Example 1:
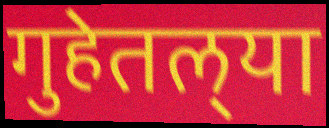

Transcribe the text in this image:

गुहेतल्या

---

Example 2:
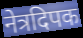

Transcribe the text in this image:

नेत्रदिपक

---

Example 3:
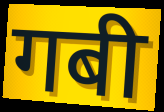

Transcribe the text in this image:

गबी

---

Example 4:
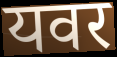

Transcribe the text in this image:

यवर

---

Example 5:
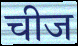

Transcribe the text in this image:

चीज